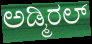
ಅಡ್ಮಿರಲ್